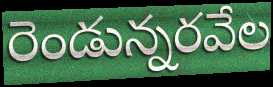
రెండున్నరవేల